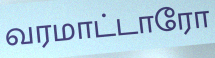
வரமாட்டாரோ